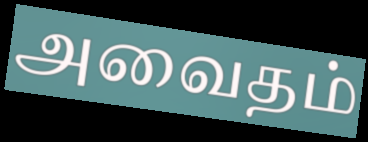
அவைதம்